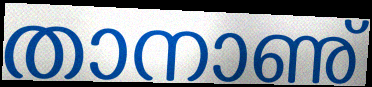
താനാണു്